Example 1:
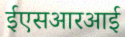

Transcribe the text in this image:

ईएसआरआई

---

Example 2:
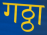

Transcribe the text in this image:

गठ्ठा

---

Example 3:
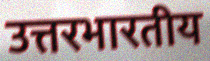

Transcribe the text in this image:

उत्तरभारतीय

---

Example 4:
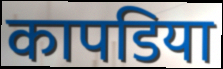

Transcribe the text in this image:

कापडिया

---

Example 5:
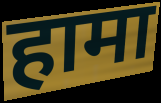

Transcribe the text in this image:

हामा